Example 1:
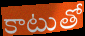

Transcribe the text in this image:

కాటుతో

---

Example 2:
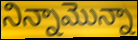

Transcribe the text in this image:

నిన్నామొన్నా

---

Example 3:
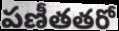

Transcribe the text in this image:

పణీతతరో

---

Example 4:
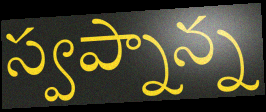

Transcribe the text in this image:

స్వప్నాన్న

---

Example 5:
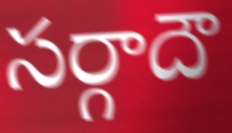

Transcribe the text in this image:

సర్గాదౌ